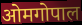
ओमगोपाल